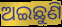
ଅଇଛୁଣି